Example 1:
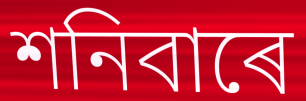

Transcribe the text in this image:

শনিবাৰে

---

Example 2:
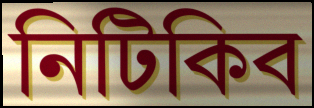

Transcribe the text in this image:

নিটিকিব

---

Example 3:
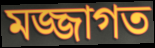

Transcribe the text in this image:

মজ্জাগত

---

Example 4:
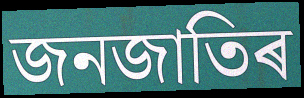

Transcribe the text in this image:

জনজাতিৰ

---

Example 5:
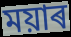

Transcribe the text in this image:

ময়াৰ